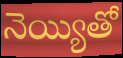
నెయ్యితో